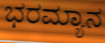
ಭರಮ್ಯಾನ